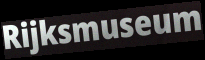
Rijksmuseum